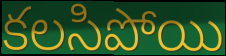
కలసిపోయి